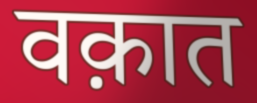
वक़ात